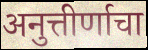
अनुत्तीर्णाचा